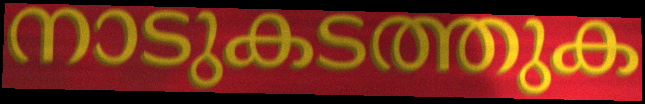
നാടുകടത്തുക